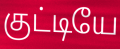
குட்டியே